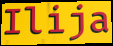
Ilija